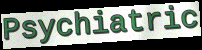
Psychiatric